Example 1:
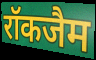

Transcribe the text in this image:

रॉकजैम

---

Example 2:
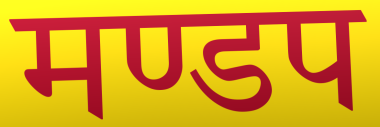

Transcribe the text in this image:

मण्‍डप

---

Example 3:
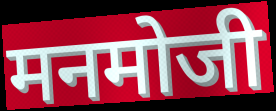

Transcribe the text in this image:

मनमोजी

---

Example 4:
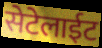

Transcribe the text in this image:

सेटेलाईट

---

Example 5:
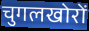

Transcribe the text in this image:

चुगलखोरों